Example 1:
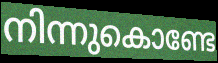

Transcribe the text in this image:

നിന്നുകൊണ്ടേ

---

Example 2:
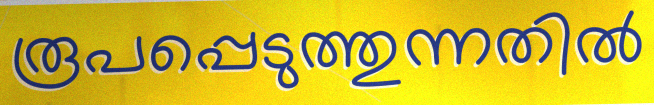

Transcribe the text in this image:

രൂപപ്പെടുത്തുന്നതിൽ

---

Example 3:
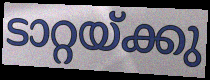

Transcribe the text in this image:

ടാറ്റയ്ക്കു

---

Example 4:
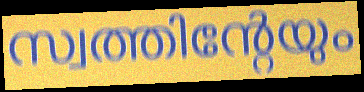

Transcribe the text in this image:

സ്വത്തിന്റേയും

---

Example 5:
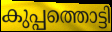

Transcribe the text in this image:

കുപ്പത്തൊട്ടി